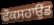
ਫੌਕਸਹਾਉਂਡ